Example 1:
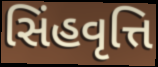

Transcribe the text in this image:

સિંહવૃત્તિ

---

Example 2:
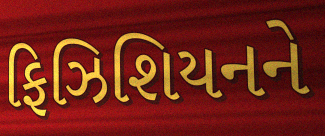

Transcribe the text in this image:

ફિઝિશિયનને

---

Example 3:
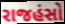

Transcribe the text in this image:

રાજહંસો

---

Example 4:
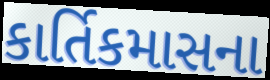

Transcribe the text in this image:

કાર્તિકમાસના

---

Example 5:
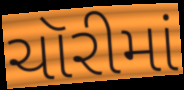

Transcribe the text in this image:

ચૉરીમાં